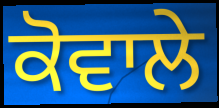
ਕੋਵਾਲੇ